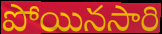
పోయినసారి